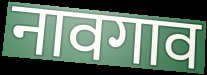
नावगाव